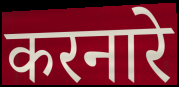
करनारे